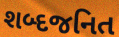
શબ્દજનિત